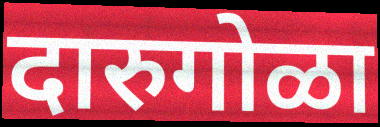
दारुगोळा